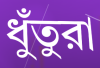
ধুঁতুরা